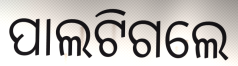
ପାଲଟିଗଲେ